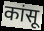
कांसू